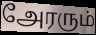
அேரரும்